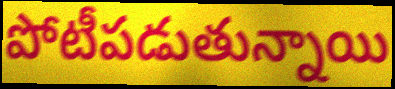
పోటీపడుతున్నాయి